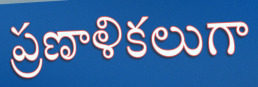
ప్రణాళికలుగా